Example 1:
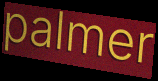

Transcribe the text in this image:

palmer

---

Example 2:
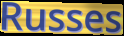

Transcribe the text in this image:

Russes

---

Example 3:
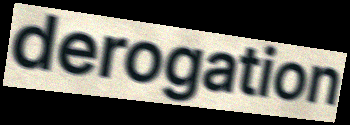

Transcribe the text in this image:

derogation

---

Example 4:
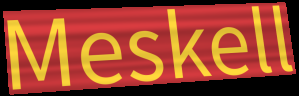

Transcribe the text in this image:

Meskell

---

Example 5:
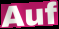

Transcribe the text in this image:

Auf